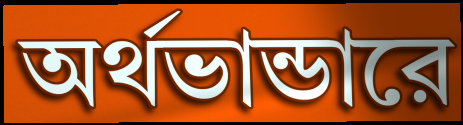
অর্থভান্ডারে